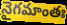
నైగమాంతః